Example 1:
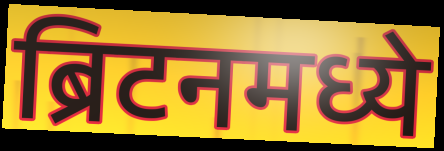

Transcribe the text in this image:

ब्रिटनमध्ये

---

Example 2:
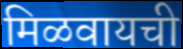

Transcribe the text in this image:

मिळवायची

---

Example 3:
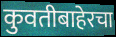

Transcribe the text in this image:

कुवतीबाहेरचा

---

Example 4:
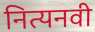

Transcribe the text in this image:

नित्यनवी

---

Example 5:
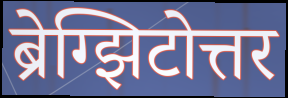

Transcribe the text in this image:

ब्रेग्झिटोत्तर